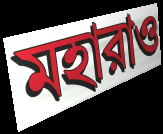
মহারাও